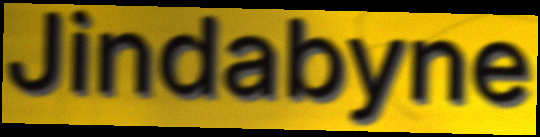
Jindabyne